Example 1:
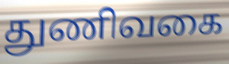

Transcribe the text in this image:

துணிவகை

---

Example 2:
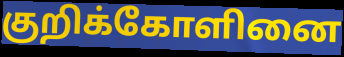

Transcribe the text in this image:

குறிக்கோளினை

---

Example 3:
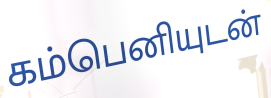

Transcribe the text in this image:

கம்பெனியுடன்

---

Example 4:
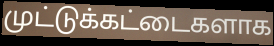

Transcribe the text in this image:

முட்டுக்கட்டைகளாக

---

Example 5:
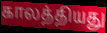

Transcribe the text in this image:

காலத்தியது